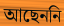
আছেননি